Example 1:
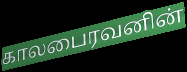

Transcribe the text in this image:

காலபைரவனின்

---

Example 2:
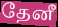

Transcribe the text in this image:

தேனீ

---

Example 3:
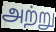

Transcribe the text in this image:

அற்று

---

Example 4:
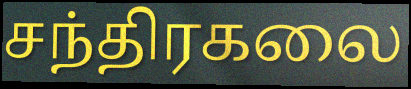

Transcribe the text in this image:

சந்திரகலை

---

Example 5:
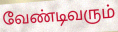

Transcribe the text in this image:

வேண்டிவரும்